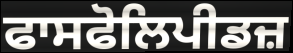
ਫਾਸਫੋਲਿਪੀਡਜ਼